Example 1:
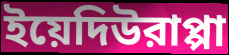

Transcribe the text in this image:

ইয়েদিউরাপ্পা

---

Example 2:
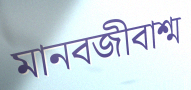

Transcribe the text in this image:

মানবজীবাশ্ম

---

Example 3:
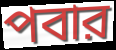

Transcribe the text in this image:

পবার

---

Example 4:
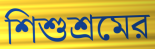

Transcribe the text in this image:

শিশুশ্রমের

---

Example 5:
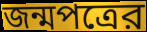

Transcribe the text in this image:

জন্মপত্রের